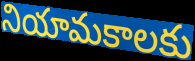
నియామకాలకు